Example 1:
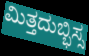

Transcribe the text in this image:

ಮಿತ್ತದುಬ್ಭಿಸ್ಸ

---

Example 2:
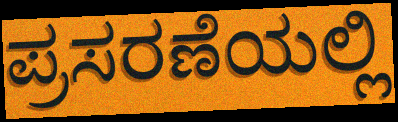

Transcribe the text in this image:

ಪ್ರಸರಣೆಯಲ್ಲಿ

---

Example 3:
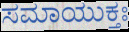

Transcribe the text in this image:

ಸಮಾಯುಕ್ತಃ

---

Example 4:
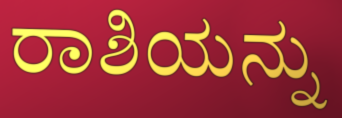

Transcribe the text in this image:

ರಾಶಿಯನ್ನು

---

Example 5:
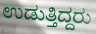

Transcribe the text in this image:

ಉಡುತ್ತಿದ್ದರು